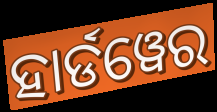
ହାର୍ଡୱେର